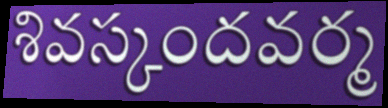
శివస్కందవర్మ